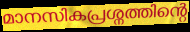
മാനസികപ്രശ്നത്തിന്റെ